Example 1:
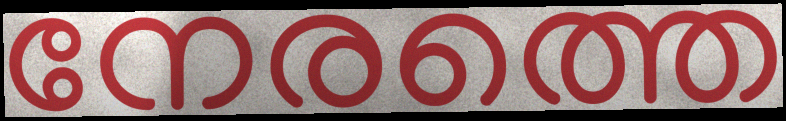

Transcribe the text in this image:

നേരത്തെ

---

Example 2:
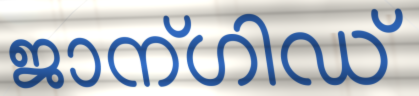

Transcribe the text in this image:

ജാന്ഗിഡ്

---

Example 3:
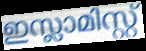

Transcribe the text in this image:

ഇസ്ലാമിസ്റ്റ്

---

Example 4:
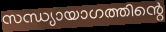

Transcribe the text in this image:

സന്ധ്യായാഗത്തിന്റെ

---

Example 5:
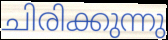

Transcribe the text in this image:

ചിരിക്കുന്നു